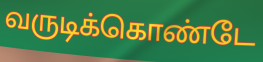
வருடிக்கொண்டே